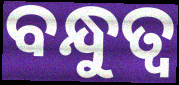
ବନ୍ଧୁତ୍ୱ